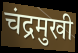
चंद्रमुखी